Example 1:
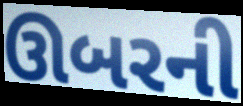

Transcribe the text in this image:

ઊબરની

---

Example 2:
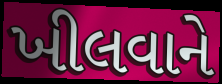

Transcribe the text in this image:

ખીલવાને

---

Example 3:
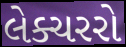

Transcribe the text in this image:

લેક્ચરરો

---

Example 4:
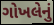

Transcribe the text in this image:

ગોખલેનું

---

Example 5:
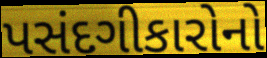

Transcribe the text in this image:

પસંદગીકારોનો